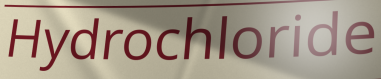
Hydrochloride